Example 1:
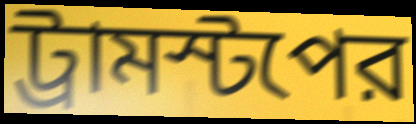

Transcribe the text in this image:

ট্রামস্টপের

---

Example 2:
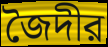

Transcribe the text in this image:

জৈদীর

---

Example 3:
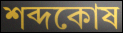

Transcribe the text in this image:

শব্দকোষ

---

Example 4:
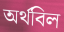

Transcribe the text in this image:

অর্থবিল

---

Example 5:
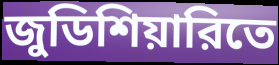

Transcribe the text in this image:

জুডিশিয়ারিতে